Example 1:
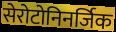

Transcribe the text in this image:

सेरोटोनिनर्जिक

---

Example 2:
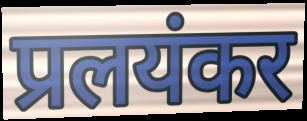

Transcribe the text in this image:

प्रलयंकर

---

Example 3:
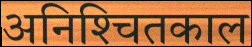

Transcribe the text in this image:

अनिश्‍चितकाल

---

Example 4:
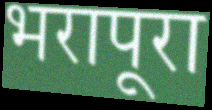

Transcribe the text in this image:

भरापूरा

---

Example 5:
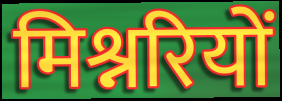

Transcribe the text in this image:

मिश्नरियों